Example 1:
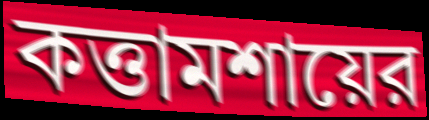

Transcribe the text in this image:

কত্তামশায়ের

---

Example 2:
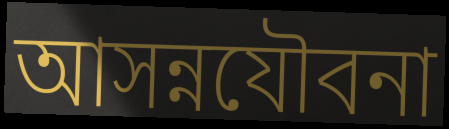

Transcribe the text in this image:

আসন্নযৌবনা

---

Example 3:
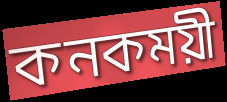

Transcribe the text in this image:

কনকময়ী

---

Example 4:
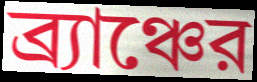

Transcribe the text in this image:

ব্র্যাঞ্চের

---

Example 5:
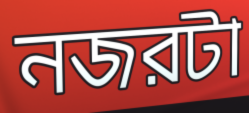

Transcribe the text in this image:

নজরটা